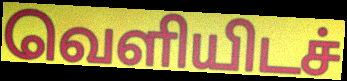
வெளியிடச்